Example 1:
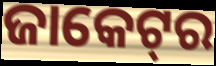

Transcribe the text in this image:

ଜାକେଟ୍‌ର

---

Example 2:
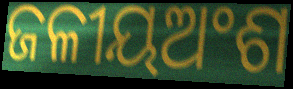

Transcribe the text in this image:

ଜଳୀୟଅଂଶ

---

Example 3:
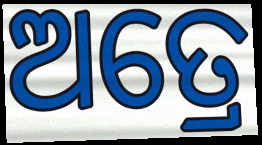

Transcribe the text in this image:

ଅତ୍ରେ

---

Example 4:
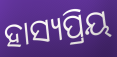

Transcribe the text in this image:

ହାସ୍ୟପ୍ରିୟ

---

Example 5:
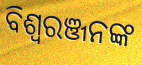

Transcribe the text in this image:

ବିଶ୍ବରଞ୍ଜନଙ୍କ